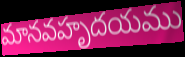
మానవహృదయము